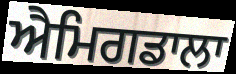
ਐਮਿਗਡਾਲਾ